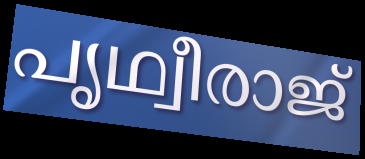
പൃഥ്വീരാജ്